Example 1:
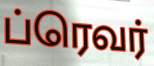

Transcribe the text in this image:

ப்ரெவர்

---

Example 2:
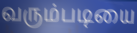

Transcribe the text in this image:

வரும்படியை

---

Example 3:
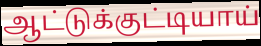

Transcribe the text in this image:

ஆட்டுக்குட்டியாய்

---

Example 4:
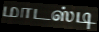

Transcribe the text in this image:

மாடஸ்டி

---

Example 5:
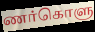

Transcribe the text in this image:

ணர்கொளு